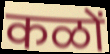
कळों